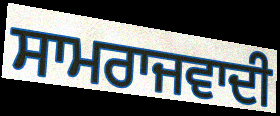
ਸਾਮਰਾਜਵਾਦੀ